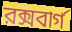
রক্সবার্গ